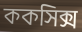
ককসিক্স